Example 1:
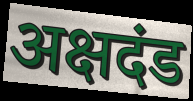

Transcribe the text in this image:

अक्षदंड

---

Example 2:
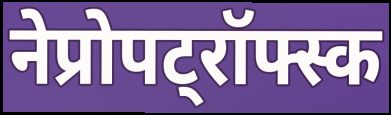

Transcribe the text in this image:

नेप्रोपट्रॉफ्स्क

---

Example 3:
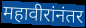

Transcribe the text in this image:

महावीरांनंतर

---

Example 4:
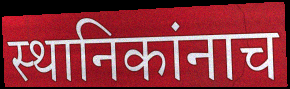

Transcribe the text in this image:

स्थानिकांनाच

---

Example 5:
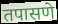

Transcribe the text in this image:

तपासणे